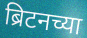
ब्रिटनच्या